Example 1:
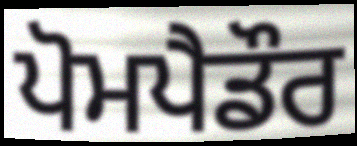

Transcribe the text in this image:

ਪੋਮਪੈਡੌਰ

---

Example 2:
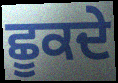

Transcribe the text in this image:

ਛੂਕਦੇ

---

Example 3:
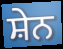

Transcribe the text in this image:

ਸ਼ੇਨ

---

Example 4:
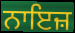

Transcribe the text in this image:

ਨਾਇਜ਼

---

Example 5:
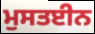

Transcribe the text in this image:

ਮੁਸਤਈਨ